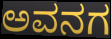
ಅವನಗ